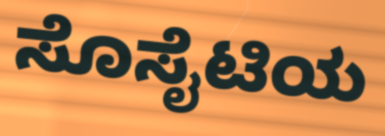
ಸೊಸೈಟಿಯ